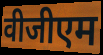
वीजीएम